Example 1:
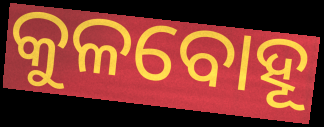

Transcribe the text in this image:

କୁଳବୋହୂ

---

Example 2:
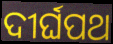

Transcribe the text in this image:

ଦୀର୍ଘପଥ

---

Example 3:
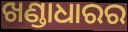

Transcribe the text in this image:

ଖଣ୍ଡାଧାରର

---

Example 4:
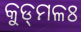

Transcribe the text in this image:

କୁଡ୍‌ମଳଃ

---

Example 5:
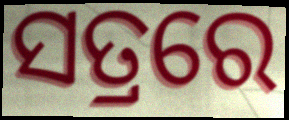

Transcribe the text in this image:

ସତ୍ରରେ